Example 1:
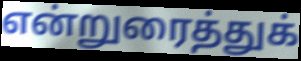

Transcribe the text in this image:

என்றுரைத்துக்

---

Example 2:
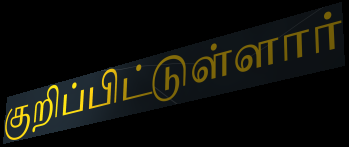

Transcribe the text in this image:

குறிப்பிட்டுள்ளார்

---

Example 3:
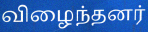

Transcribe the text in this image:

விழைந்தனர்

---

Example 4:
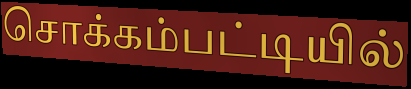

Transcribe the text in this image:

சொக்கம்பட்டியில்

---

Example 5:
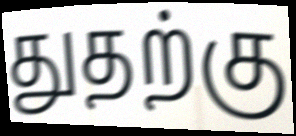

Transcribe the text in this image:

துதற்கு